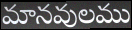
మానవులము